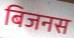
बिजनस